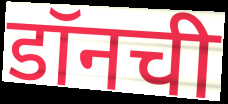
डॉनची